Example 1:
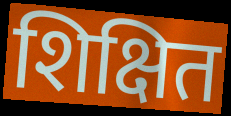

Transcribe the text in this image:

शिक्षित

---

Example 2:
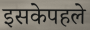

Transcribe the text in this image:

इसकेपहले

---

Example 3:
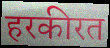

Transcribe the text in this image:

हरकीरत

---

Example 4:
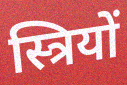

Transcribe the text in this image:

स्त्रियों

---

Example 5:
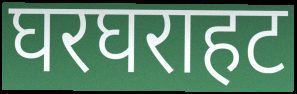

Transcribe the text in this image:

घरघराहट